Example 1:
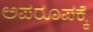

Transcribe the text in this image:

ಅಪರೂಪಕ್ಕೆ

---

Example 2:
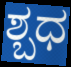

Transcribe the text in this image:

ಶ್ಬಧ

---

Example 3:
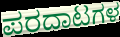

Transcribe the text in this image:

ಪರದಾಟಗಳ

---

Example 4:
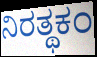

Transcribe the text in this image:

ನಿರತ್ಥಕಂ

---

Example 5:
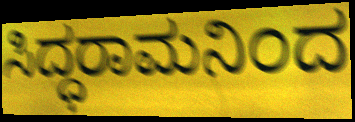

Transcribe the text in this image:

ಸಿದ್ಧರಾಮನಿಂದ